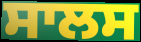
ਸਾਲਸ